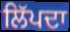
ਲਿੱਪਦਾ